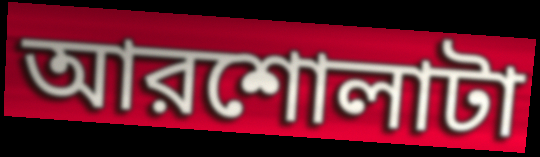
আরশোলাটা